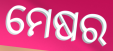
ମେଷର